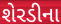
શેરડીના